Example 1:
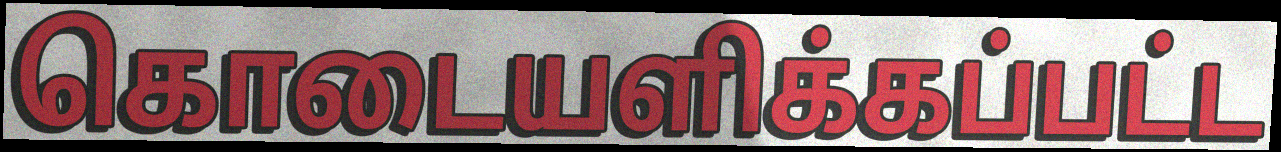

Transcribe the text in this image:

கொடையளிக்கப்பட்ட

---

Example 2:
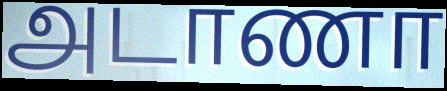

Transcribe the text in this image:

அடாணா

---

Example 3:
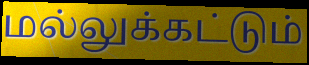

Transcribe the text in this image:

மல்லுக்கட்டும்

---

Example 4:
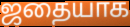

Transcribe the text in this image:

ஜதையாக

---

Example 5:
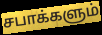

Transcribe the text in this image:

சபாக்களும்